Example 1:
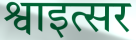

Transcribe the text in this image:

श्वाइत्सर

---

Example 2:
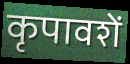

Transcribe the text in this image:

कृपावशें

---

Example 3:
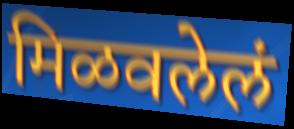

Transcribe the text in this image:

मिळवलेलं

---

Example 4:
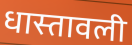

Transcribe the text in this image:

धास्तावली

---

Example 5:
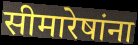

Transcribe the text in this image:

सीमारेषांना